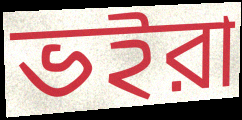
ভইরা